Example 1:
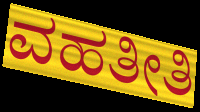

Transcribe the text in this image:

ವಹತೀತಿ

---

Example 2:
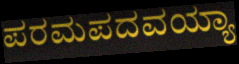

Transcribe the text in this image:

ಪರಮಪದವಯ್ಯಾ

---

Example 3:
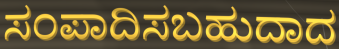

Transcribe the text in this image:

ಸಂಪಾದಿಸಬಹುದಾದ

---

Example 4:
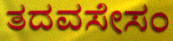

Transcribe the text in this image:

ತದವಸೇಸಂ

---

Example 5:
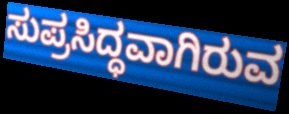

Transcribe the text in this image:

ಸುಪ್ರಸಿದ್ಧವಾಗಿರುವ